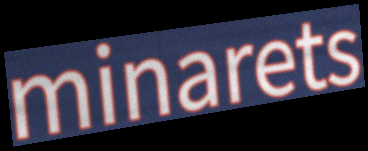
minarets